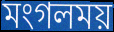
মংগলময়